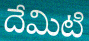
దేమిటి